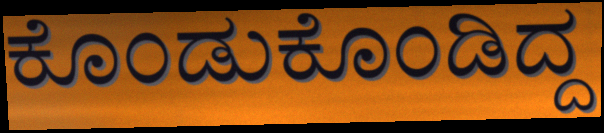
ಕೊಂಡುಕೊಂಡಿದ್ದ